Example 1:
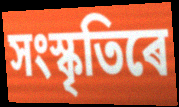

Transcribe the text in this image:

সংস্কৃতিৰে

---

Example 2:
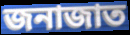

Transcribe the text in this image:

জনাজাত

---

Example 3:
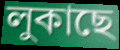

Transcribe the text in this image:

লুকাছে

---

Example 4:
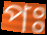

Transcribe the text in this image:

পঃ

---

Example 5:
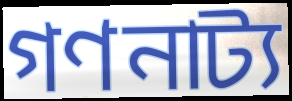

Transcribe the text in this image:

গণনাট্য